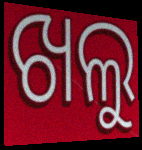
ଖଲୁ